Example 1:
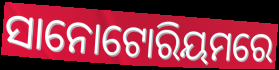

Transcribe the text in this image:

ସାନୋଟୋରିୟମରେ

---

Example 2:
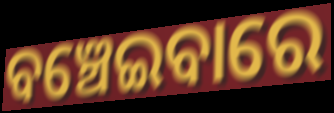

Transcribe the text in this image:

ବଞ୍ଚେଇବାରେ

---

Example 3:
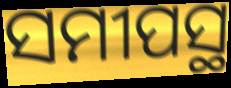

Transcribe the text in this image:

ସମୀପସ୍ଥ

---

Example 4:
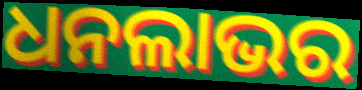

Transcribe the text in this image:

ଧନଲାଭର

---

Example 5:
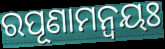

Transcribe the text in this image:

ରପୂଣାମନ୍ଵୟଃ